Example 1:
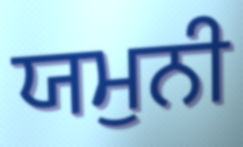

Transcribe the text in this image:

ਯਮੁਨੀ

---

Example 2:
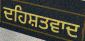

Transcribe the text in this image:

ਦਹਿਸ਼ਤਵਾਦ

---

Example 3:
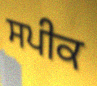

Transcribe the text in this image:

ਸਪੀਕ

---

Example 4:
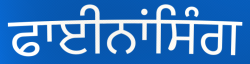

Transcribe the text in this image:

ਫਾਈਨਾਂਸਿੰਗ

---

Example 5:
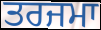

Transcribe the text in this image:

ਤਰਜਮਾ